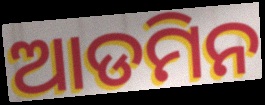
ଆଡମିନ